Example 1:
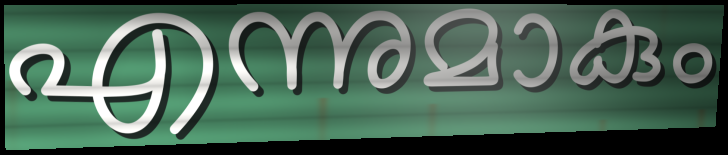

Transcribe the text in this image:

എന്നുമാകും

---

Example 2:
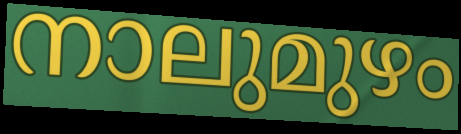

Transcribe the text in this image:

നാലുമുഴം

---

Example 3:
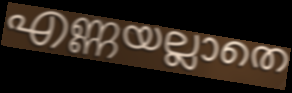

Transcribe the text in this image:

എണ്ണയല്ലാതെ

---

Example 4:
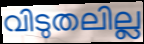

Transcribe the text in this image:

വിടുതലില്ല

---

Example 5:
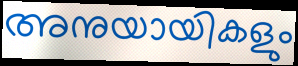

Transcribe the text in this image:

അനുയായികളും